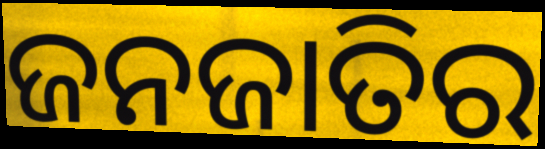
ଜନଜାତିର